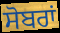
ਸੋਬਰਾਂ